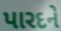
પારદને